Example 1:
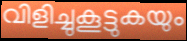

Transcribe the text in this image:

വിളിച്ചുകൂട്ടുകയും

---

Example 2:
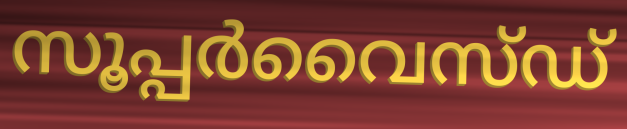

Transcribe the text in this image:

സൂപ്പർവൈസ്ഡ്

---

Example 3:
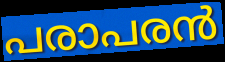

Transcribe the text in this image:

പരാപരൻ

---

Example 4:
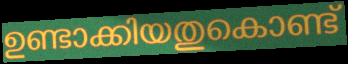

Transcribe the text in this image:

ഉണ്ടാക്കിയതുകൊണ്ട്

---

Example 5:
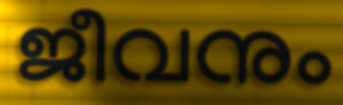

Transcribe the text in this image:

ജീവനും